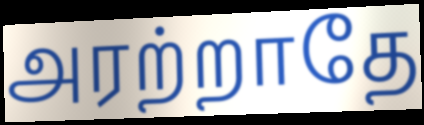
அரற்றாதே